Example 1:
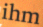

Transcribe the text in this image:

ihm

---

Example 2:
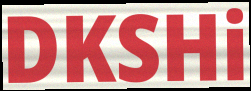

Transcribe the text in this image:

DKSHi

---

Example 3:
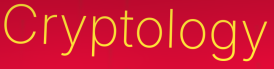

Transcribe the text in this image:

Cryptology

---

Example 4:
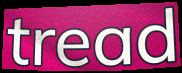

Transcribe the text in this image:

tread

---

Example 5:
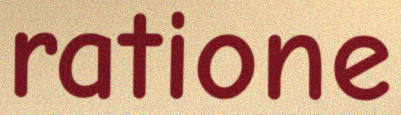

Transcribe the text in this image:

ratione